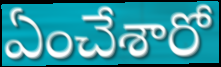
ఏంచేశారో